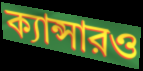
ক্যান্সারও